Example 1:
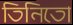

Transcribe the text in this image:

তিনিতো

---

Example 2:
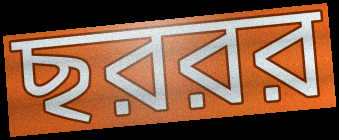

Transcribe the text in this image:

ছররর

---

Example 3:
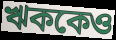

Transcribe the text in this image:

ঋককেও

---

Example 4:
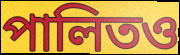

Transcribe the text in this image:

পালিতও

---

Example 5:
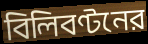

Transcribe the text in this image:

বিলিবণ্টনের